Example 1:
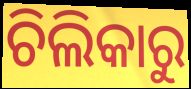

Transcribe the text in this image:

ଚିଲିକାରୁ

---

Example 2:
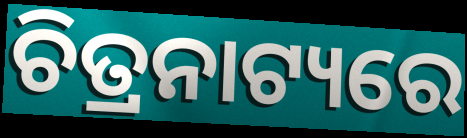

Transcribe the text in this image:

ଚିତ୍ରନାଟ୍ୟରେ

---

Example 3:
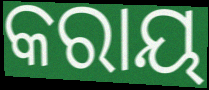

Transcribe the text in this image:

କରାୟ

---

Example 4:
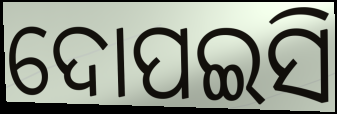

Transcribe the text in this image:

ଦୋପଇସି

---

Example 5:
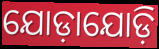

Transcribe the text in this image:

ଯୋଡ଼ାଯୋଡ଼ି